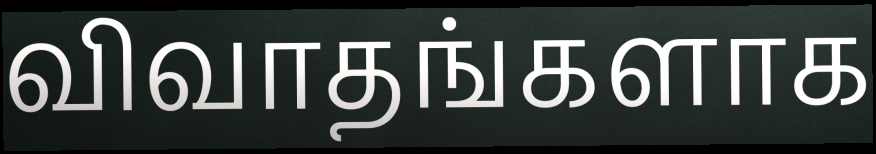
விவாதங்களாக